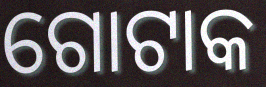
ଗୋଟାକ